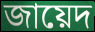
জায়েদ